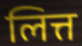
लित्त